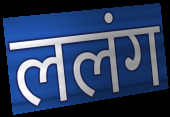
ललंग